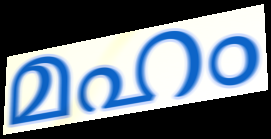
മഹം